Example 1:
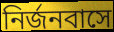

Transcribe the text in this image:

নির্জনবাসে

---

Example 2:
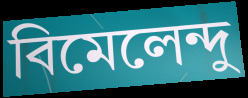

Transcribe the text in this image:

বিমেলেন্দু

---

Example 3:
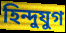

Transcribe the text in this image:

হিন্দুযুগ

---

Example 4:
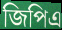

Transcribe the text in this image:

জিপিএ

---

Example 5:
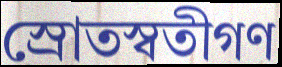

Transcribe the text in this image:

স্রোতস্বতীগণ